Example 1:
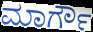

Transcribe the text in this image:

ಮಾರ್ಗೌ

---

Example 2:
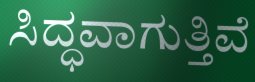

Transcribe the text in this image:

ಸಿದ್ಧವಾಗುತ್ತಿವೆ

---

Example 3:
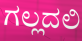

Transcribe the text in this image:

ಗಲ್ಲದಲಿ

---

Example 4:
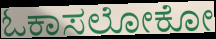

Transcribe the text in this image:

ಓಕಾಸಲೋಕೋ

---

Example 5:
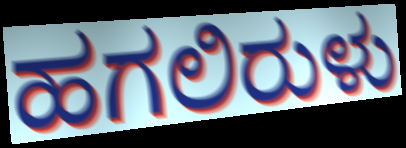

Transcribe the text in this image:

ಹಗಲಿರುಳು